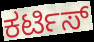
ಕರ್ಟಿಸ್